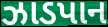
ઝાડપાન